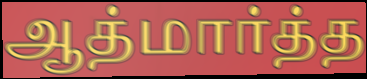
ஆத்மார்த்த